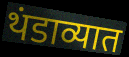
थंडाव्यात